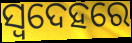
ସ୍ଵଦେହରେ